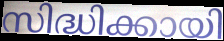
സിദ്ധിക്കായി